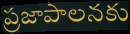
ప్రజాపాలనకు